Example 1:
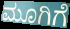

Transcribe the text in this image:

ಮೂಗಿಗೆ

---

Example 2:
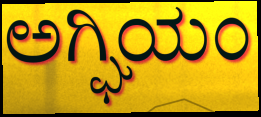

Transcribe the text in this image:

ಅಗ್ಘಿಯಂ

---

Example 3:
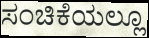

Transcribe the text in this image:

ಸಂಚಿಕೆಯಲ್ಲೂ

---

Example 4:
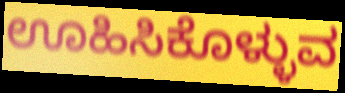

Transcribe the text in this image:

ಊಹಿಸಿಕೊಳ್ಳುವ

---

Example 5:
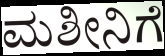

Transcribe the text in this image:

ಮಶೀನಿಗೆ